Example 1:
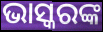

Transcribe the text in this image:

ଭାସ୍କରଙ୍କ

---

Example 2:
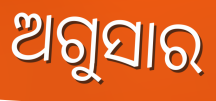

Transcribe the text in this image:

ଅଗୁସାର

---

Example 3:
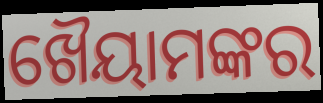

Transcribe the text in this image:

ଖୈୟାମଙ୍କର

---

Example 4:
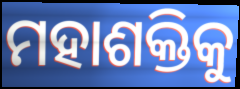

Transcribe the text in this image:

ମହାଶକ୍ତିକୁ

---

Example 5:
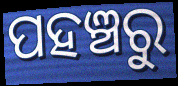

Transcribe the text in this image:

ପହଞ୍ଚରୁ